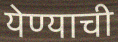
येण्याची